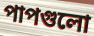
পাপগুলো